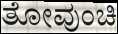
ತೋವುಂಚಿ